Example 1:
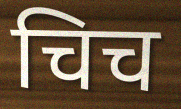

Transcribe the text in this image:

चिच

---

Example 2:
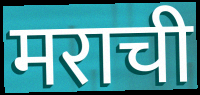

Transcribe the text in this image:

मराची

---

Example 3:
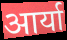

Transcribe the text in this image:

आर्या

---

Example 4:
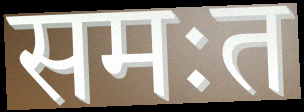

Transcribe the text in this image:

समःत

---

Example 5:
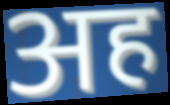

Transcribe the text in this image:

अह